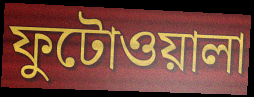
ফুটোওয়ালা